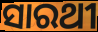
ସାରଥୀ